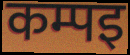
कम्पइ